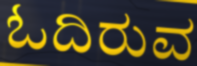
ಓದಿರುವ